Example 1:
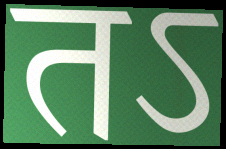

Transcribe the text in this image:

तऽ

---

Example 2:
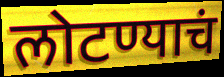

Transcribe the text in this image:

लोटण्याचं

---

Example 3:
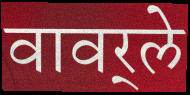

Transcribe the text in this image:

वावर्ले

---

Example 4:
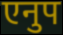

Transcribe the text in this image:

एनुप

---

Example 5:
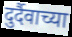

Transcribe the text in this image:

दुर्दैवाच्या